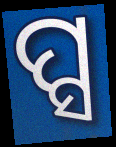
ପ୍ସ